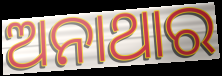
ଅନାଥାର